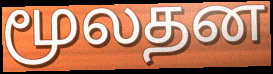
மூலதன